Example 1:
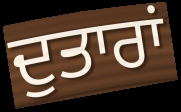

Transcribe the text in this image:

ਦੁਤਾਰਾਂ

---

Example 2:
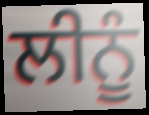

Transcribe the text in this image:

ਲੀਨੂੰ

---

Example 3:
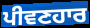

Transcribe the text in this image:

ਪੀਵਣਹਾਰ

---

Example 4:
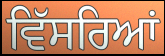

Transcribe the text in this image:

ਵਿੱਸਰਿਆਂ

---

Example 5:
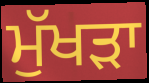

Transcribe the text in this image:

ਮੁੱਖੜਾ